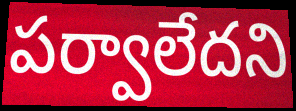
పర్వాలేదని